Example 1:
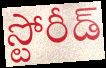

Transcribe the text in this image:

స్టోరీడ్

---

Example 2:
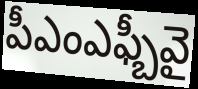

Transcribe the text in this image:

పీఎంఎఫ్బీవై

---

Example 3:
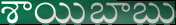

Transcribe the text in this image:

శాయిబాబు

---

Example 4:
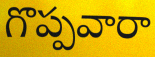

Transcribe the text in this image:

గొప్పవారా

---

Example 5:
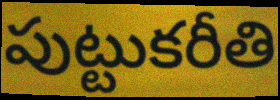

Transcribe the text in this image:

పుట్టుకరీతి